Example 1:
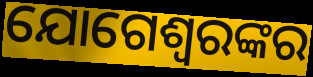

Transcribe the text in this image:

ଯୋଗେଶ୍ଵରଙ୍କର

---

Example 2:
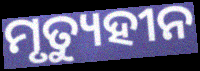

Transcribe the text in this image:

ମୃତ୍ୟୁହୀନ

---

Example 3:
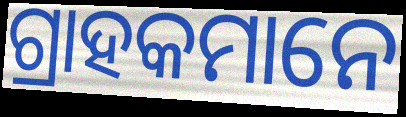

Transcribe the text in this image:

ଗ୍ରାହକମାନେ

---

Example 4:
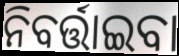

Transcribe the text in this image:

ନିବର୍ତ୍ତାଇବା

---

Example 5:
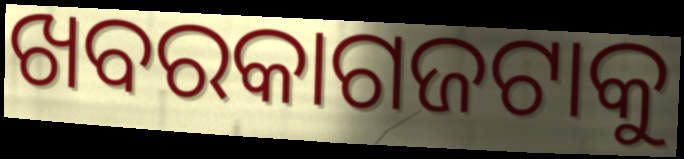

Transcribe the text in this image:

ଖବରକାଗଜଟାକୁ